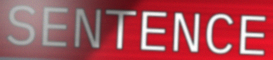
SENTENCE